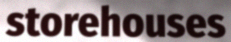
storehouses